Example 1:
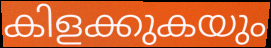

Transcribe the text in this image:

കിളക്കുകയും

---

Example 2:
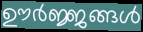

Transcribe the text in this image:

ഊർജ്ജങ്ങൾ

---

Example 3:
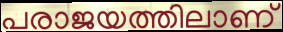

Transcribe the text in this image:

പരാജയത്തിലാണ്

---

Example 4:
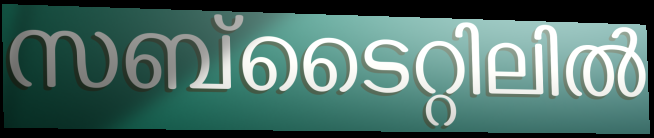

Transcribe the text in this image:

സബ്ടൈറ്റിലിൽ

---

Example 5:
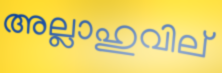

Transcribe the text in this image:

അല്ലാഹുവില്